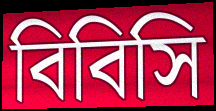
বিবিসি